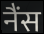
नैंस